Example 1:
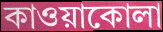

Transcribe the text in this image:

কাওয়াকোলা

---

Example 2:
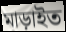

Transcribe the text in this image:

মাড়াইত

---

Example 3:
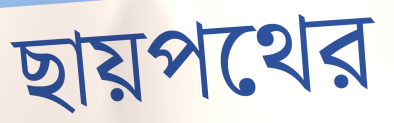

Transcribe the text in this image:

ছায়পথের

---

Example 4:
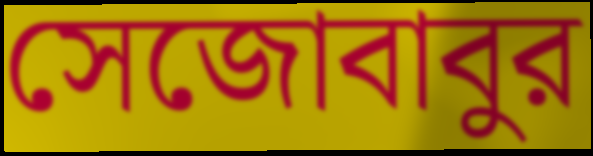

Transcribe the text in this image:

সেজোবাবুর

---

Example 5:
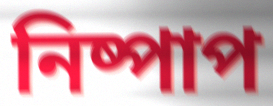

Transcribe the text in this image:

নিষ্পাপ